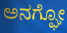
ಅನಗ್ಘೋ